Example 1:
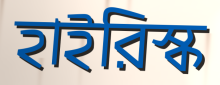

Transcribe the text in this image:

হাইরিস্ক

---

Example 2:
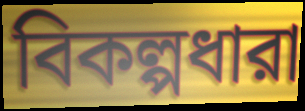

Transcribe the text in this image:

বিকল্পধারা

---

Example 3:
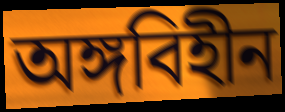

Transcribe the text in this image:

অঙ্গবিহীন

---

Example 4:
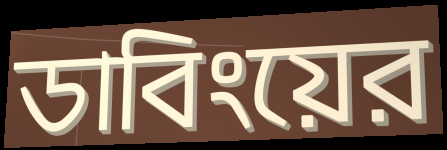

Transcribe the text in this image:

ডাবিংয়ের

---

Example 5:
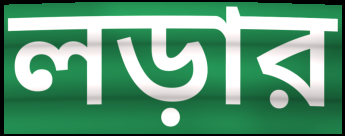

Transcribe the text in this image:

লড়ার